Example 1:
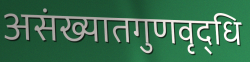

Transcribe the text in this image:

असंख्यातगुणवृद्धि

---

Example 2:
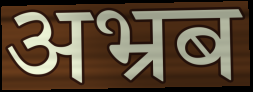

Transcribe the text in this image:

अभ्रब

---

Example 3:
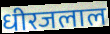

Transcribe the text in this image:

धीरजलाल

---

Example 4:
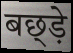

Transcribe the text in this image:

बछ्ड़े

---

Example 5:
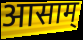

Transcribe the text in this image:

आसाम्